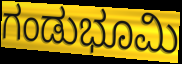
ಗಂಡುಭೂಮಿ